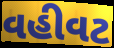
વહીવટ